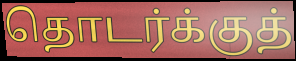
தொடர்க்குத்